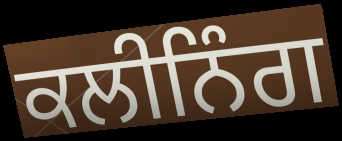
ਕਲੀਨਿੰਗ